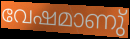
വേഷമാണു്